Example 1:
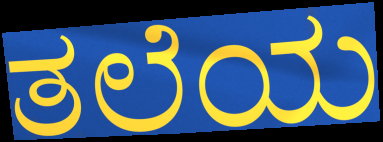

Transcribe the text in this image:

ತಲೆಯ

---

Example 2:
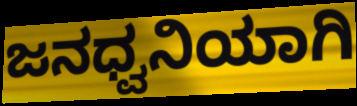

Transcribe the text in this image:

ಜನಧ್ವನಿಯಾಗಿ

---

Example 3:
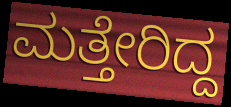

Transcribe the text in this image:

ಮತ್ತೇರಿದ್ದ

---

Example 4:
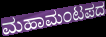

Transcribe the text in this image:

ಮಹಾಮಂಟಪದ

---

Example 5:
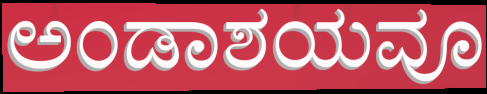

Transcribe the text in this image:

ಅಂಡಾಶಯವೂ